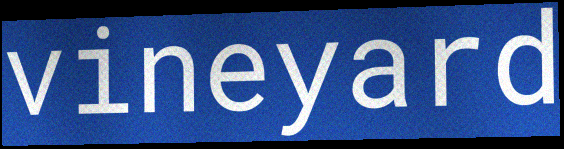
vineyard